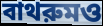
বাথরুমও